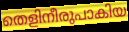
തെളിനീരുപാകിയ